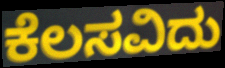
ಕೆಲಸವಿದು